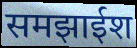
समझाईश